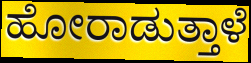
ಹೋರಾಡುತ್ತಾಳೆ